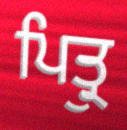
ਪਿਤ੍ਰੁ